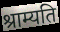
श्राम्यति